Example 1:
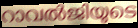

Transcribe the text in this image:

റാവൽജിയുടെ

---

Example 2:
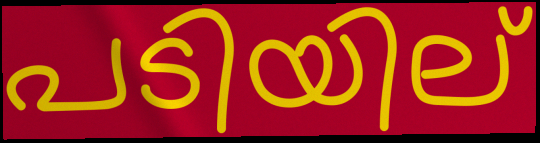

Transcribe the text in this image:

പടിയില്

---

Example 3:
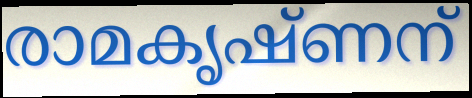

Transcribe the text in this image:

രാമകൃഷ്ണന്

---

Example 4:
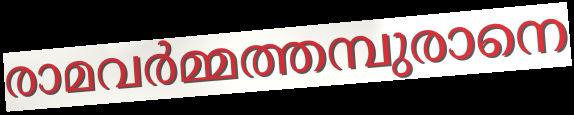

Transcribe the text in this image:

രാമവർമ്മത്തമ്പുരാനെ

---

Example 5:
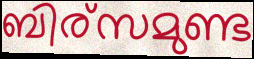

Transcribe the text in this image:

ബിര്സമുണ്ട